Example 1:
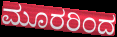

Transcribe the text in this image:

ಮೂರರಿಂದ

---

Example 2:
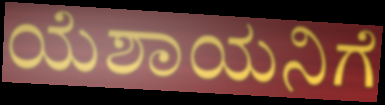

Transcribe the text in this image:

ಯೆಶಾಯನಿಗೆ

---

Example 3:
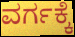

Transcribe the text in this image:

ವರ್ಗಕ್ಕೆ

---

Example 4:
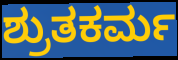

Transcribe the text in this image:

ಶ್ರುತಕರ್ಮ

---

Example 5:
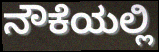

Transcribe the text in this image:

ನೌಕೆಯಲ್ಲಿ